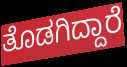
ತೊಡಗಿದ್ದಾರೆ